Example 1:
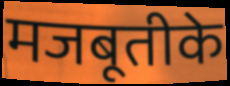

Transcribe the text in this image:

मजबूतीके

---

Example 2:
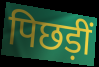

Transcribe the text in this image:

पिछड़ीं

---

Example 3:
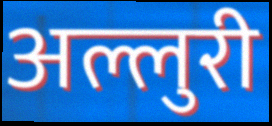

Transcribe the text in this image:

अल्लुरी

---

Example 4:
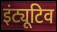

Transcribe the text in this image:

इंट्यूटिव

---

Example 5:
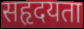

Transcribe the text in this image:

सहृदयता